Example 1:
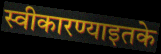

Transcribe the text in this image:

स्वीकारण्याइतके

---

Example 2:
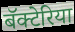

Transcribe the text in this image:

बॅक्टेरिया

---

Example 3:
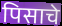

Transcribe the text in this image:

पिसाचे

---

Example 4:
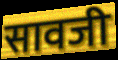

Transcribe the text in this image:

सावजी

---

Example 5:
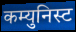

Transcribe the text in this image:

कम्युनिस्ट